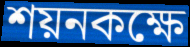
শয়নকক্ষে